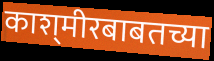
काश्मीरबाबतच्या